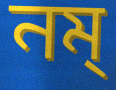
নম্